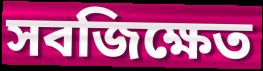
সবজিক্ষেত